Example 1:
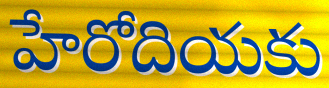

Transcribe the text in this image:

హేరోదియకు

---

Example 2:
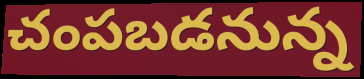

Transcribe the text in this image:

చంపబడనున్న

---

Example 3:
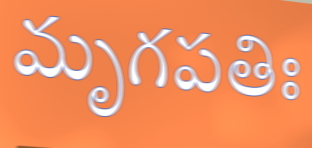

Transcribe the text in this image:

మృగపతిః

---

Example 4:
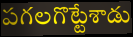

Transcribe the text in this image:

పగలగొట్టేశాడు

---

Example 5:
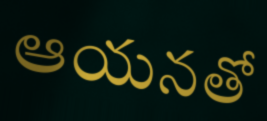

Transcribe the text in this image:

ఆయనతో